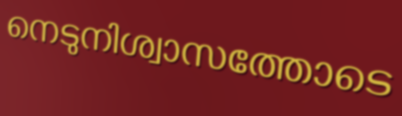
നെടുനിശ്വാസത്തോടെ